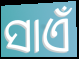
ସାଏଁ